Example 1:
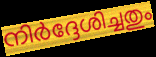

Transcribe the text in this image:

നിർദ്ദേശിച്ചതും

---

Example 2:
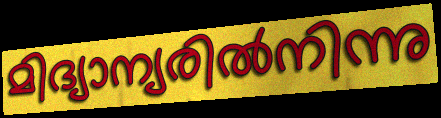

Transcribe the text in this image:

മിദ്യാന്യരിൽനിന്നു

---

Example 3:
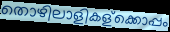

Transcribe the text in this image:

തൊഴിലാളികള്ക്കൊപ്പം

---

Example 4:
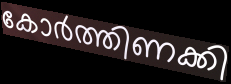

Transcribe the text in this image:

കോർത്തിണക്കി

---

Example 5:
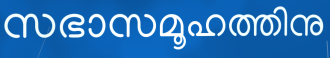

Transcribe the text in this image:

സഭാസമൂഹത്തിനു